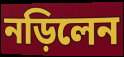
নড়িলেন